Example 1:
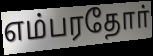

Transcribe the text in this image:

எம்பரதோர்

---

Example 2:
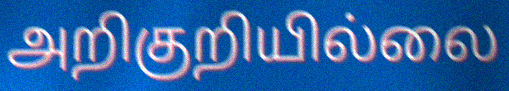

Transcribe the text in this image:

அறிகுறியில்லை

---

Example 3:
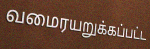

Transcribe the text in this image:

வமைரயறுக்கப்பட்ட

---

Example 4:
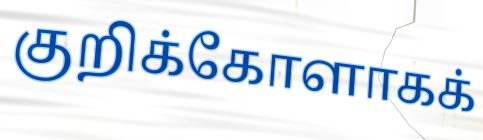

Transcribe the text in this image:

குறிக்கோளாகக்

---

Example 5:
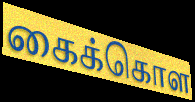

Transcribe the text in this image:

கைக்கொள